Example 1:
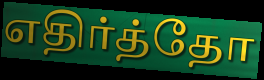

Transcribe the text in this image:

எதிர்த்தோ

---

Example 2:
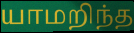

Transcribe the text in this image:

யாமறிந்த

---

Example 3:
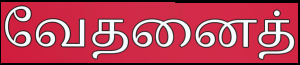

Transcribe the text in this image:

வேதனைத்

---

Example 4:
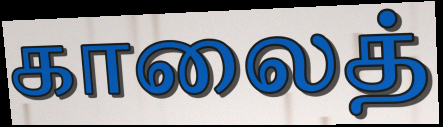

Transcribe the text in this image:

காலைத்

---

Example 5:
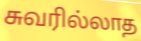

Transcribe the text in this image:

சுவரில்லாத